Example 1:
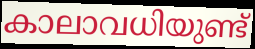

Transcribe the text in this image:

കാലാവധിയുണ്ട്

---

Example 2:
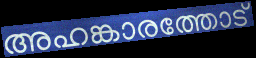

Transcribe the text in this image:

അഹങ്കാരത്തോട്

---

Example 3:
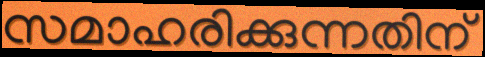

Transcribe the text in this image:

സമാഹരിക്കുന്നതിന്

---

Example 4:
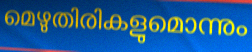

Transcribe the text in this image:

മെഴുതിരികളുമൊന്നും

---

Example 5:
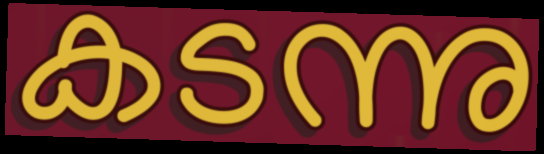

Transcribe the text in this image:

കടന്നു